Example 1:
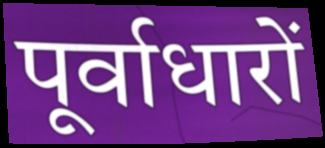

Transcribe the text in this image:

पूर्वाधारों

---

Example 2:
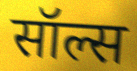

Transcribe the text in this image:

सॉल्स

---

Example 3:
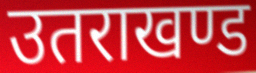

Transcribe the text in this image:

उतराखण्ड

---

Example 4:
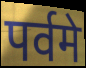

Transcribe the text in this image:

पर्वमे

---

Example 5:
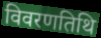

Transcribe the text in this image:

विवरणतिथि